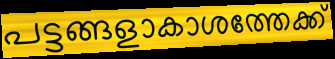
പട്ടങ്ങളാകാശത്തേക്ക്